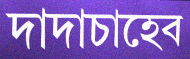
দাদাচাহেব